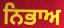
ਨਿਭਾਅ